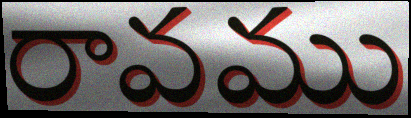
రావము